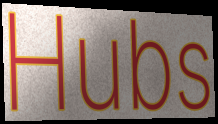
Hubs